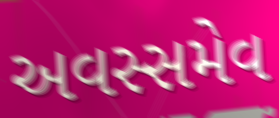
અવસ્સમેવ